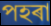
পহৰা